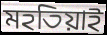
মহতিয়াই